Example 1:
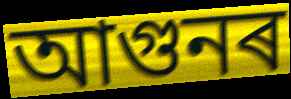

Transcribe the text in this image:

আগুনৰ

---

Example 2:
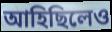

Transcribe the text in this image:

আহিছিলেও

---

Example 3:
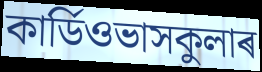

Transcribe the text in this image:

কাৰ্ডিওভাসকুলাৰ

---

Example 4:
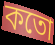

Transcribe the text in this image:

কতো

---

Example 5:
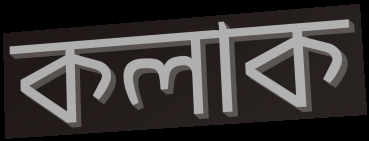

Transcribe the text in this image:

কলাক